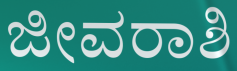
ಜೀವರಾಶಿ